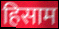
हिसाम